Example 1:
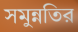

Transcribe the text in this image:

সমুন্নতির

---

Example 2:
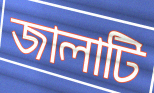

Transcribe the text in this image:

জালাটি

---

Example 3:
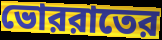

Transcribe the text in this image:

ভোররাতের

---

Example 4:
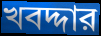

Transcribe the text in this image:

খবদ্দার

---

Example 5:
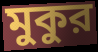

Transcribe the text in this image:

মুকুর